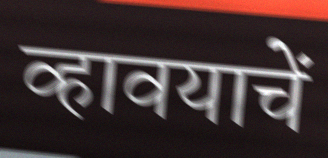
व्हावयाचें